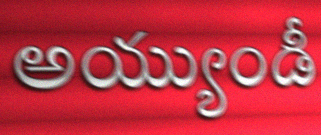
అయ్యుండీ